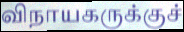
விநாயகருக்குச்